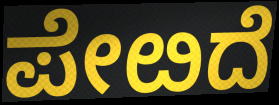
ಪೇೞದೆ